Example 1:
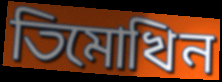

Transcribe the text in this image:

তিমোখিন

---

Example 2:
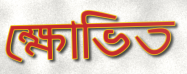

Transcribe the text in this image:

ক্ষোভিত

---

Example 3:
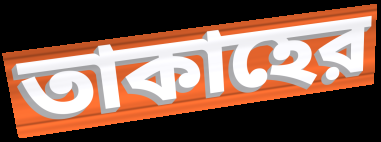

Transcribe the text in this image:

তাকাহের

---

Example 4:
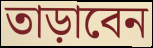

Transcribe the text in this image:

তাড়াবেন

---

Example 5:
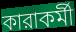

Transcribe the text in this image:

কারাকর্মী